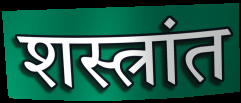
शस्त्रांत